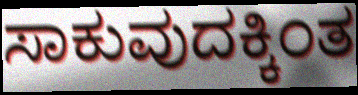
ಸಾಕುವುದಕ್ಕಿಂತ